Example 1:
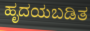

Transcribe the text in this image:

ಹೃದಯಬಡಿತ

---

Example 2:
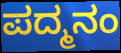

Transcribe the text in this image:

ಪದ್ಮನಂ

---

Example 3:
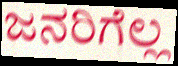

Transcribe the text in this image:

ಜನರಿಗೆಲ್ಲ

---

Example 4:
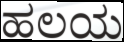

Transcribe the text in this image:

ಹಲಯ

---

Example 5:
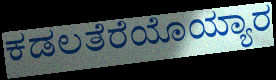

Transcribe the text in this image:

ಕಡಲತೆರೆಯೊಯ್ಯಾರ